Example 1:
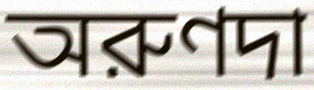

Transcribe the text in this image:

অরুণদা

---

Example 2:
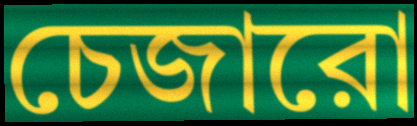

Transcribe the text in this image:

চেজারো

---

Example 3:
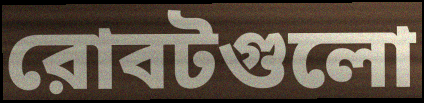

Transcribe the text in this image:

রোবটগুলো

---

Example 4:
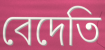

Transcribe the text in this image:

বেদেতি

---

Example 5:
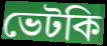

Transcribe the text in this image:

ভেটকি